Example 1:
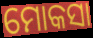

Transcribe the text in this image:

ମୋକସା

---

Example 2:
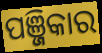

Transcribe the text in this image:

ପଞ୍ଜିକାର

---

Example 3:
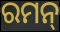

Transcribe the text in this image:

ରମନ୍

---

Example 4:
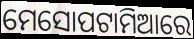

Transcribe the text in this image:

ମେସୋପଟାମିଆରେ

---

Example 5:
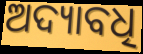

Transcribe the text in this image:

ଅଦ୍ୟାବଧି